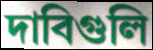
দাবিগুলি